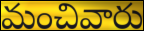
మంచివారు